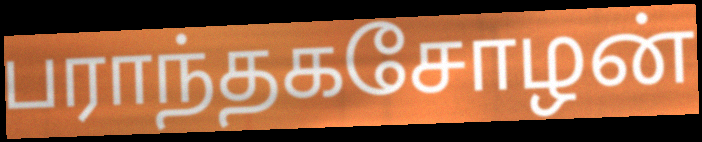
பராந்தகசோழன்